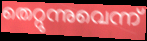
തെറ്റുന്നുവെന്ന്